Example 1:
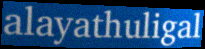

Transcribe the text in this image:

alayathuligal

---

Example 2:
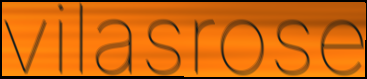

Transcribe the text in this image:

vilasrose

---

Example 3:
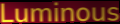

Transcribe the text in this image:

Luminous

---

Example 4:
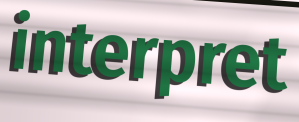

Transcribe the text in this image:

interpret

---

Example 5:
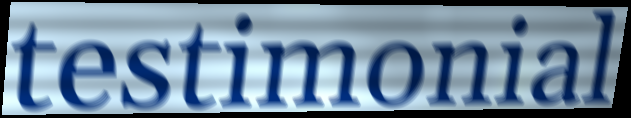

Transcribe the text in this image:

testimonial